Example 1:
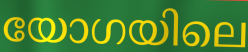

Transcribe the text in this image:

യോഗയിലെ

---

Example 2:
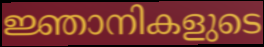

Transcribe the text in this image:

ജ്ഞാനികളുടെ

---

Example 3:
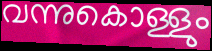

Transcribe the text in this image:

വന്നുകൊള്ളും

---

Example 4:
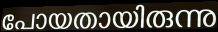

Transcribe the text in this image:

പോയതായിരുന്നു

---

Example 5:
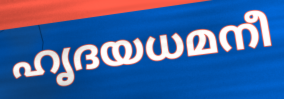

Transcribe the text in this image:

ഹൃദയധമനീ